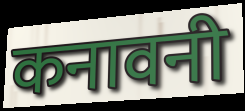
कनावनी